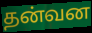
தன்வன